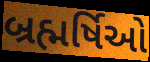
બ્રહ્મર્ષિઓ